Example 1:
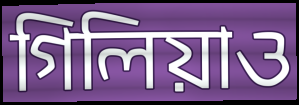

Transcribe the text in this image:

গিলিয়াও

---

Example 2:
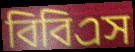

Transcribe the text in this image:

বিবিএস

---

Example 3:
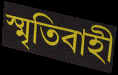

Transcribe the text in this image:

স্মৃতিবাহী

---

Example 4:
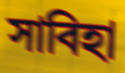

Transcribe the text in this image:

সাবিহা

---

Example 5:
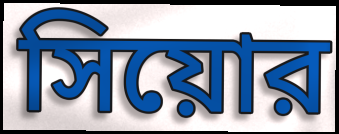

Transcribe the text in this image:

সিয়োর